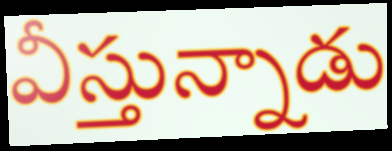
వీస్తున్నాడు